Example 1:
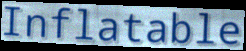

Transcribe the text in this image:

Inflatable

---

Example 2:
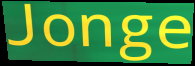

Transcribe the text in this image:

Jonge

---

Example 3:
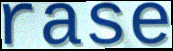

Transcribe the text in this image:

rase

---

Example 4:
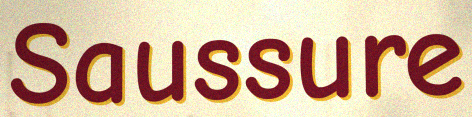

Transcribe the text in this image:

Saussure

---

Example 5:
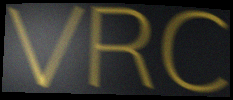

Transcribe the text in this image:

VRC